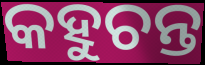
କହୁଚନ୍ତ